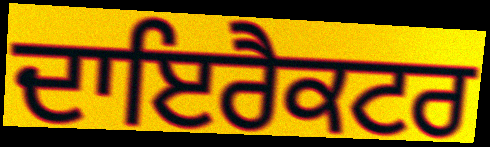
ਦਾਇਰੈਕਟਰ